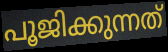
പൂജിക്കുന്നത്